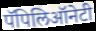
पॅपिलिऑनेटी